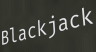
Blackjack